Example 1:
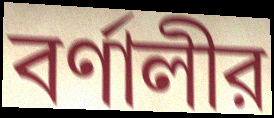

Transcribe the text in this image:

বর্ণালীর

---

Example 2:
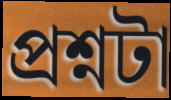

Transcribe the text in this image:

প্রশ্নটা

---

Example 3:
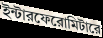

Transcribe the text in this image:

ইন্টারফেরোমিটারে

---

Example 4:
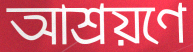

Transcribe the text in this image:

আশ্রয়ণে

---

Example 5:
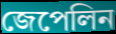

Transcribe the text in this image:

জেপেলিন